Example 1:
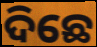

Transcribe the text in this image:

ଦିଛେ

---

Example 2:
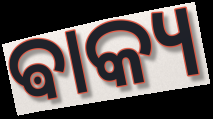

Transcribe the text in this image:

ଵାକ୍ୟ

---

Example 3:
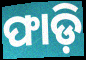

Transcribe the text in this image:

ଫାଡ଼ି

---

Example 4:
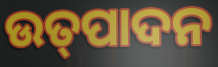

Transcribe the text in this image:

ଉତ୍‌ପାଦନ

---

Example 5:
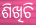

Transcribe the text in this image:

ଶିଖିଚି